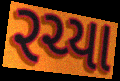
રચ્યા